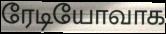
ரேடியோவாக